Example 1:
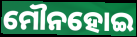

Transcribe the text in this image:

ମୌନହୋଇ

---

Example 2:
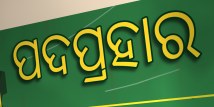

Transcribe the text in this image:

ପଦପ୍ରହାର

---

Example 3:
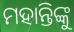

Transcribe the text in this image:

ମହାନ୍ତିଙ୍କୁ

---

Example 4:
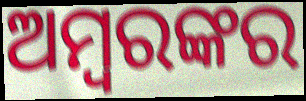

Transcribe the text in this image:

ଅମ୍ବରଙ୍କର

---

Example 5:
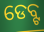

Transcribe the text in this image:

ଡେବ୍ଟ